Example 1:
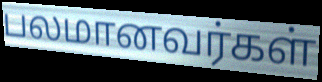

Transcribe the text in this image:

பலமானவர்கள்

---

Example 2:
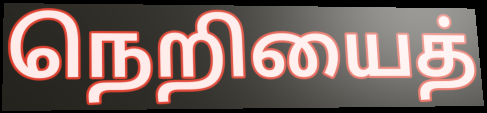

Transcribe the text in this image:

நெறியைத்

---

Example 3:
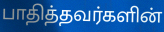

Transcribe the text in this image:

பாதித்தவர்களின்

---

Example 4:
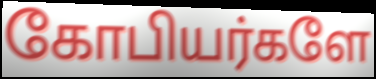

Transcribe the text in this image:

கோபியர்களே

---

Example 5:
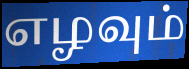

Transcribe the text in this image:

எழவும்